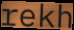
rekh